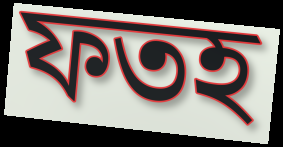
ফতহ